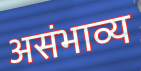
असंभाव्य